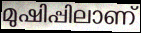
മുഷിപ്പിലാണ്